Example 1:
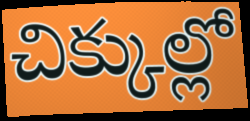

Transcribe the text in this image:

చిక్కుల్లో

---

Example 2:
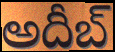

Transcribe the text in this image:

అదీబ్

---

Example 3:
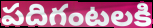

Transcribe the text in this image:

పదిగంటలకి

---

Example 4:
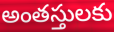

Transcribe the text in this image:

అంతస్తులకు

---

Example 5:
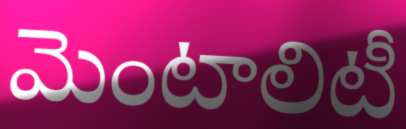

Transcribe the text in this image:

మెంటాలిటీ